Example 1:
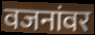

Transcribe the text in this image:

वजनांवर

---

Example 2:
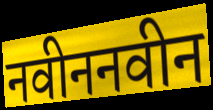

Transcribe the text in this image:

नवीननवीन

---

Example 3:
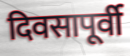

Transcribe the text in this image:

दिवसापूर्वी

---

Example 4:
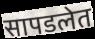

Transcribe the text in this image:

सापडलेत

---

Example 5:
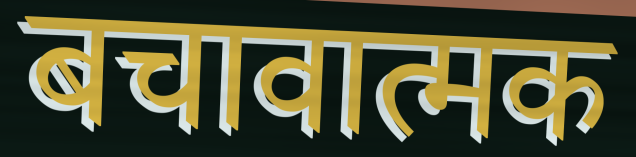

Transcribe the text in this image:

बचावात्मक